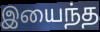
இயைந்த